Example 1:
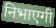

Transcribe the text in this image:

निभाएगी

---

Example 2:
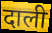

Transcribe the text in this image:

दाली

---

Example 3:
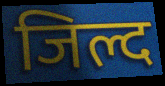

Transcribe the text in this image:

जिल्द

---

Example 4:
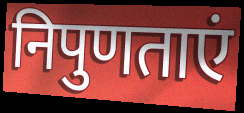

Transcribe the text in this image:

निपुणताएं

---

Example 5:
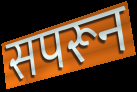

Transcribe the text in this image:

सपरून